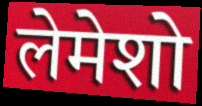
लेमेशो